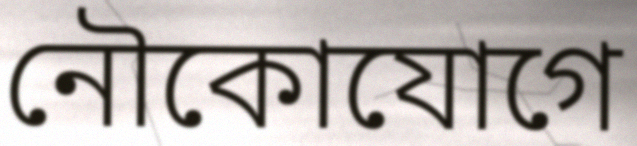
নৌকোযোগে